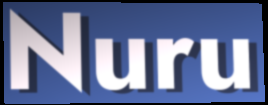
Nuru